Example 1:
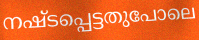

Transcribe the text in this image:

നഷ്ടപ്പെട്ടതുപോലെ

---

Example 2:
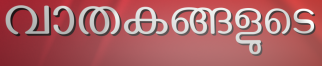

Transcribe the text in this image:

വാതകങ്ങളുടെ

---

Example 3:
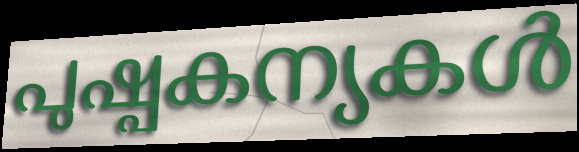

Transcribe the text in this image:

പുഷ്പകന്യകൾ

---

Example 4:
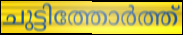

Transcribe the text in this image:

ചുട്ടിത്തോർത്ത്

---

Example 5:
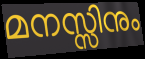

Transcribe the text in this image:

മനസ്സിനും